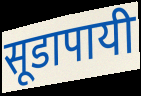
सूडापायी